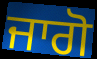
ਜਾਗੋ